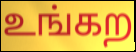
உங்கற